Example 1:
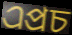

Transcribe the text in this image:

এপ্রচ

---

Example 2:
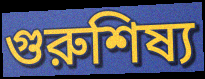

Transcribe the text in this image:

গুরুশিষ্য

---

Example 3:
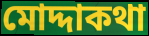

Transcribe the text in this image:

মোদ্দাকথা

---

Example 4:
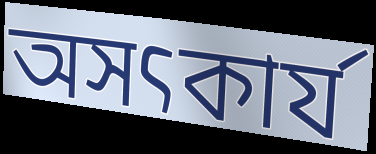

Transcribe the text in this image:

অসৎকার্য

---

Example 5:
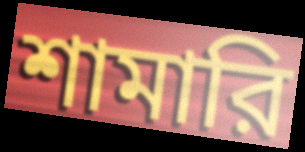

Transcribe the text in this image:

শামারি